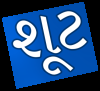
શૂટ